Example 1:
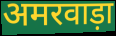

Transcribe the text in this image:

अमरवाड़ा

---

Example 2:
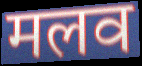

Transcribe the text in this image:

मलव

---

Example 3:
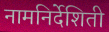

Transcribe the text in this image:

नामनिर्देशिती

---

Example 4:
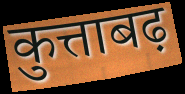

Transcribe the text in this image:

कुत्ताबढ़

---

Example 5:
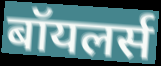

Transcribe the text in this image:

बॉयलर्स